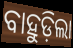
ବାହୁଡ଼ିଲା